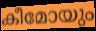
കീമോയും